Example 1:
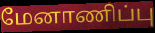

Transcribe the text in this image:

மேனாணிப்பு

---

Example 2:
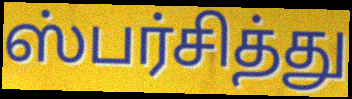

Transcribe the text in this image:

ஸ்பர்சித்து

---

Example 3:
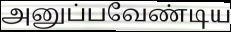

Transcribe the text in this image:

அனுப்பவேண்டிய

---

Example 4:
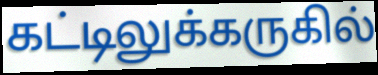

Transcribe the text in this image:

கட்டிலுக்கருகில்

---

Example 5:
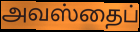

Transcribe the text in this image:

அவஸ்தைப்